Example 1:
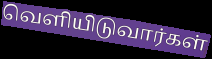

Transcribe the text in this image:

வெளியிடுவார்கள்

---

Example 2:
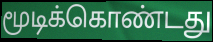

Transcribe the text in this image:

மூடிக்கொண்டது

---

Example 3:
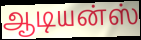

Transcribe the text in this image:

ஆடியன்ஸ்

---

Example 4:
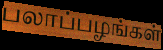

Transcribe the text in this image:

பலாப்பழங்கள்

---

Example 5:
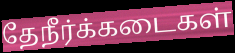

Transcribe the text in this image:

தேநீர்க்கடைகள்